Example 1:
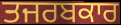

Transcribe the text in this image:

ਤਜਰਬਕਾਰ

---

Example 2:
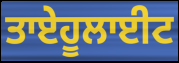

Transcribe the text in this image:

ਤਾਏਹੂਲਾਈਟ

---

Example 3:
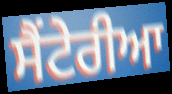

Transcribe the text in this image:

ਸੈਂਟੇਰੀਆ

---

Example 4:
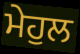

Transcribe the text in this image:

ਮੇਹੁਲ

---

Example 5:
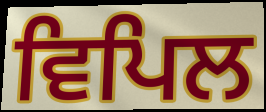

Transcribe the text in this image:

ਵਿਪਿਲ